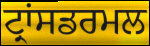
ਟ੍ਰਾਂਸਡਰਮਲ